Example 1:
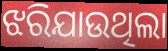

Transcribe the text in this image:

ଝରିଯାଉଥିଲା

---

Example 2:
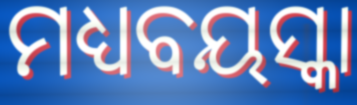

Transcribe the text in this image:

ମଧ୍ୟବୟସ୍କା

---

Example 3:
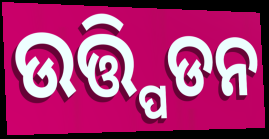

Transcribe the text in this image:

ଉତ୍ତ୍ପିଡନ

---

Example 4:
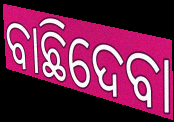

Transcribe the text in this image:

ବାଛିଦେବା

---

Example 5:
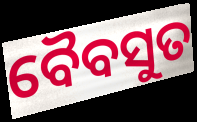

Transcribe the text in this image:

ବୈବସୁତ